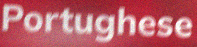
Portughese